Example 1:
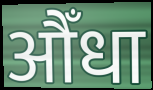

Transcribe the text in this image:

औँधा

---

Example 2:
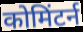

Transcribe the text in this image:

कोमिंटर्न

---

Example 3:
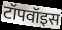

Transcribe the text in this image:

टॉपवॉइस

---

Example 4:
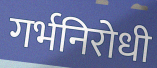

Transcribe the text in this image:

गर्भनिरोधी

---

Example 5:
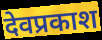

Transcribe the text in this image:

देवप्रकाश